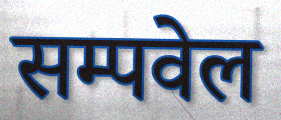
सम्पवेल